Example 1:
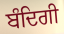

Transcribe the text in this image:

ਬੰਦਿਗੀ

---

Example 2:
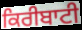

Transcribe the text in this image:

ਕਿਰੀਬਾਟੀ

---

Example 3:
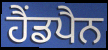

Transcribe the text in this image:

ਹੈਂਡਪੈਨ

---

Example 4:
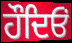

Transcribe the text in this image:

ਹੌਦਿਓਂ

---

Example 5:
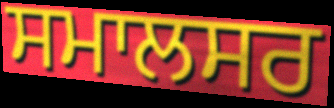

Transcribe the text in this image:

ਸਮਾਲਸਰ